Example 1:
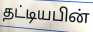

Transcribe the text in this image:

தட்டியபின்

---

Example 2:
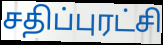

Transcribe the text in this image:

சதிப்புரட்சி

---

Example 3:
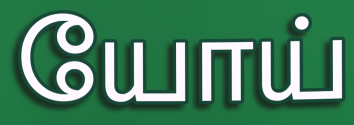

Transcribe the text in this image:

யோய்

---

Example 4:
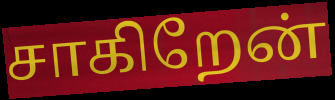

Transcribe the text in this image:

சாகிறேன்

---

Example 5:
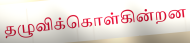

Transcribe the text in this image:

தழுவிக்கொள்கின்றன